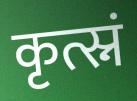
कृत्स्नं